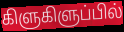
கிளுகிளுப்பில்